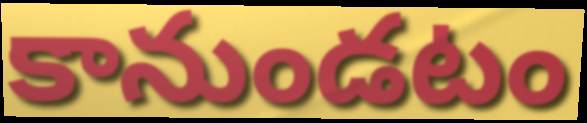
కానుండటం